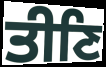
ਤੀਣਿ